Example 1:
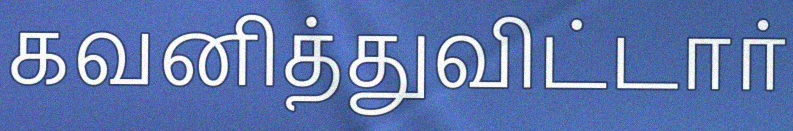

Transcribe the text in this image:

கவனித்துவிட்டார்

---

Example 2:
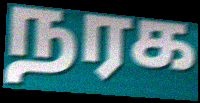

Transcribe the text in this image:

நரக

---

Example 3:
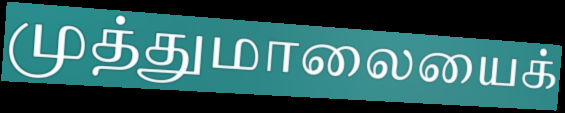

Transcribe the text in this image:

முத்துமாலையைக்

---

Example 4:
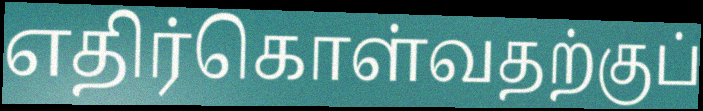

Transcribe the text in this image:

எதிர்கொள்வதற்குப்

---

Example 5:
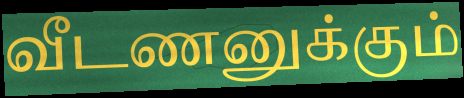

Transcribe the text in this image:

வீடணனுக்கும்